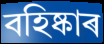
বহিষ্কাৰ